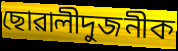
ছোৱালীদুজনীক